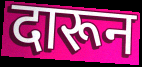
दारून